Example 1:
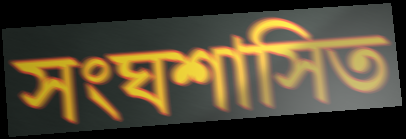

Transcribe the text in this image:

সংঘশাসিত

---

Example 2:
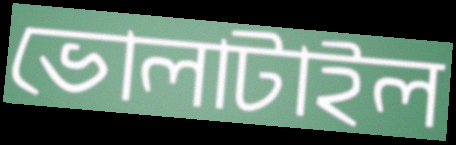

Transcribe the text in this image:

ভোলাটাইল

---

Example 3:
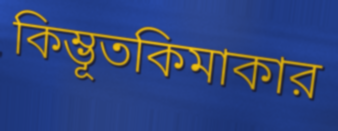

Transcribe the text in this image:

কিম্ভূতকিমাকার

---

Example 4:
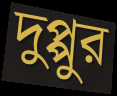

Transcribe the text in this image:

দুপ্পুর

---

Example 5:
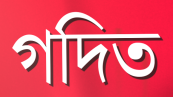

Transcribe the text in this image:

গদিত